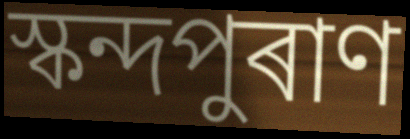
স্কন্দপুৰাণ